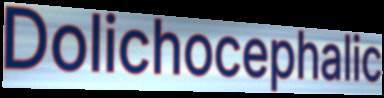
Dolichocephalic